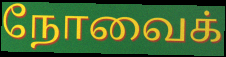
நோவைக்